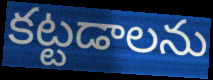
కట్టడాలను